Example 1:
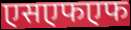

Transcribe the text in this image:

एसएफएफ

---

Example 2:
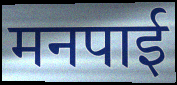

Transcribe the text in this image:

मनपाई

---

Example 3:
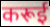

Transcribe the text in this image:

करूई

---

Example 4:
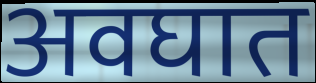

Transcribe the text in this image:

अवघात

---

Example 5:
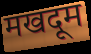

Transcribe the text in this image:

मखदूम